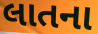
લાતના